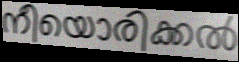
നീയൊരിക്കൽ